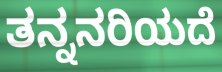
ತನ್ನನರಿಯದೆ